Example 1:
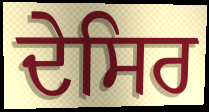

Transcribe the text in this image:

ਦੇਸਿਰ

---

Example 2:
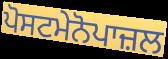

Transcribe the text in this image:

ਪੋਸਟਮੇਨੋਪਾਜ਼ਲ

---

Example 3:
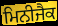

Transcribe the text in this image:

ਮਿਨੀਜੈਕ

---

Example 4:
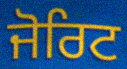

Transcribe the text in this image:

ਜੋਰਿਟ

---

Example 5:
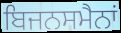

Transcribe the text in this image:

ਬਿਜਨਸਮੈਨਾਂ